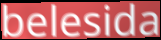
belesida